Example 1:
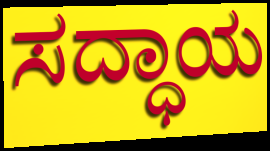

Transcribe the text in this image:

ಸದ್ಧಾಯ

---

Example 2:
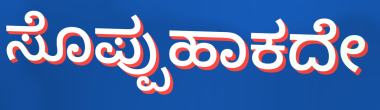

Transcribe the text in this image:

ಸೊಪ್ಪುಹಾಕದೇ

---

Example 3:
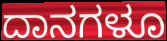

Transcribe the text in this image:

ದಾನಗಳೂ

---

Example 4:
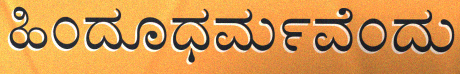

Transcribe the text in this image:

ಹಿಂದೂಧರ್ಮವೆಂದು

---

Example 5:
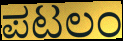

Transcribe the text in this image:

ಪಟಲಂ